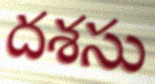
దశసు